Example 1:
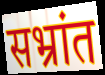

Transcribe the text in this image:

सभ्रांत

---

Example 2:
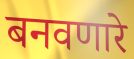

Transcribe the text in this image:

बनवणारे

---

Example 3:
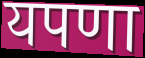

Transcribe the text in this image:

यपणा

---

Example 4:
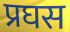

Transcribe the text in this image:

प्रघस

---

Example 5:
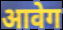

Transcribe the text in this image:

आवेग